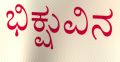
ಭಿಕ್ಷುವಿನ